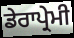
ਡੇਰਾਪ੍ਰੇਮੀ